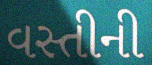
વસ્તીની